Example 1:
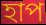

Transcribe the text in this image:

হাপ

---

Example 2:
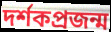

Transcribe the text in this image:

দর্শকপ্রজন্ম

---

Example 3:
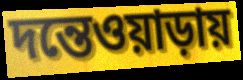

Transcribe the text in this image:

দন্তেওয়াড়ায়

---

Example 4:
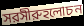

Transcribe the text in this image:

সরসীরুহলোচন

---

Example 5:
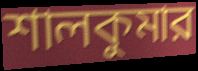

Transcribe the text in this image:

শালকুমার